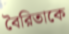
বৈরিতাকে